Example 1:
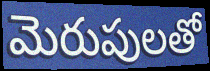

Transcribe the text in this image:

మెరుపులతో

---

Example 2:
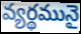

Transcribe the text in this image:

వ్యర్థమునై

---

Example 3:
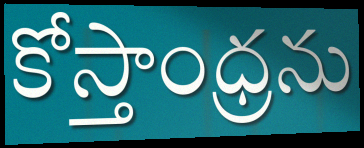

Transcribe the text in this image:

కోస్తాంధ్రను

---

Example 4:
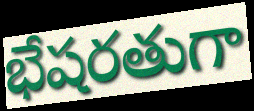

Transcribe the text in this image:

భేషరతుగా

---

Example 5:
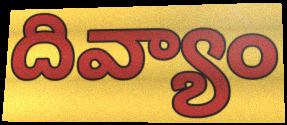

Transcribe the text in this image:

దివ్యాం